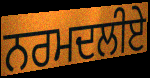
ਨਰਮਦਲੀਏ